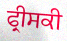
ਫ੍ਰੀਸਕੀ